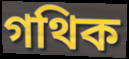
গথিক